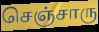
செஞ்சாரு